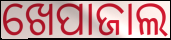
ଖେପାଜାଲ